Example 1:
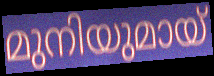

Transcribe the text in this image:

മുനിയുമായ്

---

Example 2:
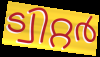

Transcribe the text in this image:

ട്വിറ്റർ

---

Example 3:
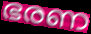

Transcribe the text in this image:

ഭരണ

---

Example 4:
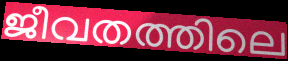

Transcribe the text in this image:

ജീവതത്തിലെ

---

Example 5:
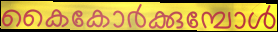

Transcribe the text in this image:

കൈകോർക്കുമ്പോൾ